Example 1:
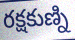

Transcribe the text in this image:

రక్షకుణ్ని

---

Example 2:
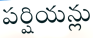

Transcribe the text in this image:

పర్షియన్లు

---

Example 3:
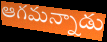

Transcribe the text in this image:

ఆగమన్నాడు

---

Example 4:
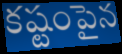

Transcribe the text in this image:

కష్టంపైన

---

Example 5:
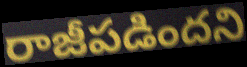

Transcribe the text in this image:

రాజీపడిందని